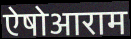
ऐषोआराम